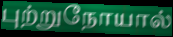
புற்றுநோயால்